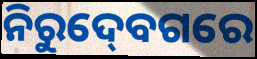
ନିରୁଦ୍‍ବେଗରେ